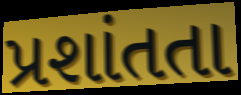
પ્રશાંતતા